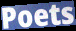
Poets